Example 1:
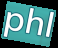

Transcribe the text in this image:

phl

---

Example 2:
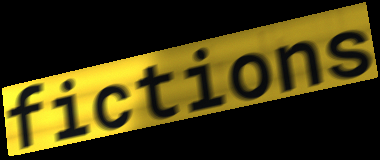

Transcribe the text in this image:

fictions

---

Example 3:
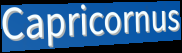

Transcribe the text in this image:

Capricornus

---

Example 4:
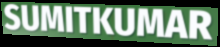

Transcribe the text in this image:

SUMITKUMAR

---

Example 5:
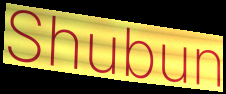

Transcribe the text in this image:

Shubun